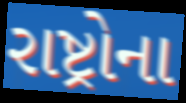
રાષ્ટ્રોના